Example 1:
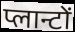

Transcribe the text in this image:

प्लान्टों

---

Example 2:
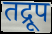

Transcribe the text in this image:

तद्रूप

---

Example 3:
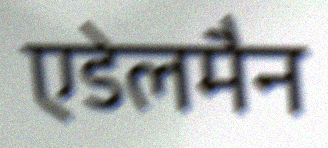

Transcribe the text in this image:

एडेलमैन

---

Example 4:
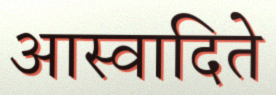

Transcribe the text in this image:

आस्वादिते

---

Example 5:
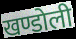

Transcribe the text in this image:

खण्डोली